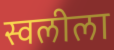
स्वलीला